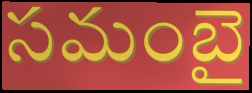
సమంబై